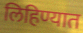
लिहिण्यात